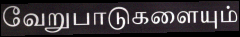
வேறுபாடுகளையும்